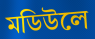
মডিউলে